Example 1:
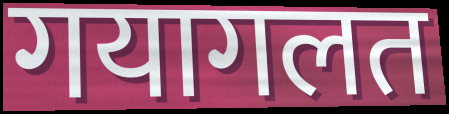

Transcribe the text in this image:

गयागलत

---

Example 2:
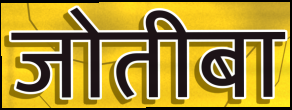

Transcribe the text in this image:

जोतीबा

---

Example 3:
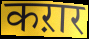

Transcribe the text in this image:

कऱार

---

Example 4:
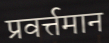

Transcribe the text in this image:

प्रवर्त्तमान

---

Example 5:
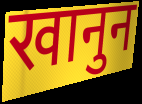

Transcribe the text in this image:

खानुन